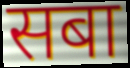
सबा